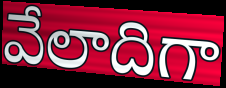
వేలాదిగా